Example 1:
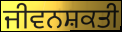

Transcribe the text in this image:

ਜੀਵਨਸ਼ਕਤੀ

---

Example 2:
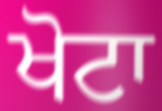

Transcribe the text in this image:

ਖੋਟਾ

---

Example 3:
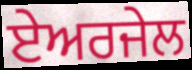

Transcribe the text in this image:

ਏਅਰਜੇਲ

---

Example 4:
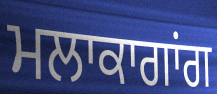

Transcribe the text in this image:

ਮਲਾਕਾਗਾਂਗ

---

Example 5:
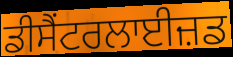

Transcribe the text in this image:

ਡੀਸੈਂਟਰਲਾਈਜ਼ਡ